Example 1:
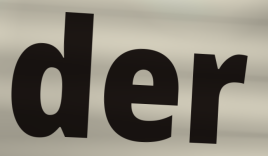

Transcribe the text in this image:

der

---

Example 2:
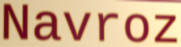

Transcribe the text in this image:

Navroz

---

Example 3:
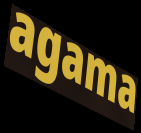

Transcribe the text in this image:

agama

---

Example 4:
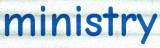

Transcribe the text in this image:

ministry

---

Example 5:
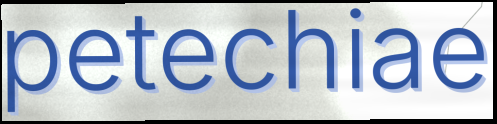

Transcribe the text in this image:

petechiae